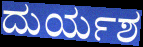
ದುರ್ಯಶ